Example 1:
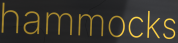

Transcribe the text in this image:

hammocks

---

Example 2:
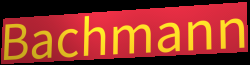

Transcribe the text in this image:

Bachmann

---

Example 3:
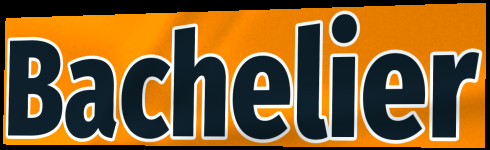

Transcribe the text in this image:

Bachelier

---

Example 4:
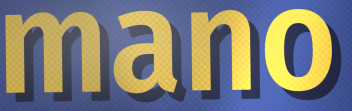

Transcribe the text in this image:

mano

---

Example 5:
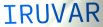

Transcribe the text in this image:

IRUVAR